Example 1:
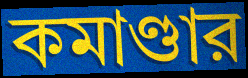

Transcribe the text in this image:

কমাণ্ডার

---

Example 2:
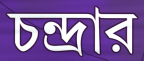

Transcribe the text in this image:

চন্দ্রার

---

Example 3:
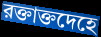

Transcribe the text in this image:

রক্তাক্তদেহে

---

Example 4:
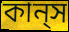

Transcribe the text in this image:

কান্‌স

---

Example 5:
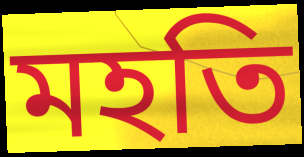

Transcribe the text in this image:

মহতি